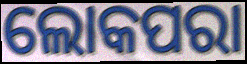
ଲୋକପରା